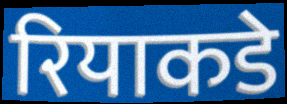
रियाकडे